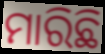
ମାରିଛି